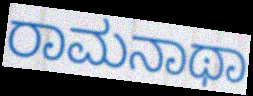
ರಾಮನಾಥಾ